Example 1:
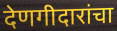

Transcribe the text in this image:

देणगीदारांचा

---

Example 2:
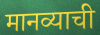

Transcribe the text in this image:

मानव्याची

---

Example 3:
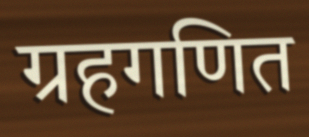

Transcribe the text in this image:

ग्रहगणित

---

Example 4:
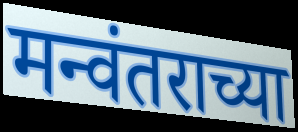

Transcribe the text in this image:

मन्वंतराच्या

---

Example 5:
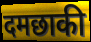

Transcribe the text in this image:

दमछाकी